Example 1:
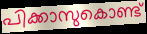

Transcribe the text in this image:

പിക്കാസുകൊണ്ട്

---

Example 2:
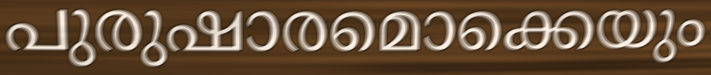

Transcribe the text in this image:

പുരുഷാരമൊക്കെയും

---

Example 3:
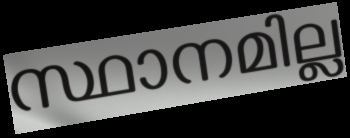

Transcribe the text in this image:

സ്ഥാനമില്ല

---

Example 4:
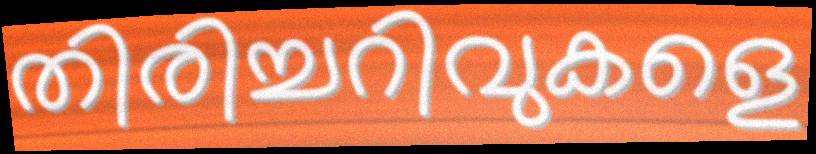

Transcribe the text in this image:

തിരിച്ചറിവുകളെ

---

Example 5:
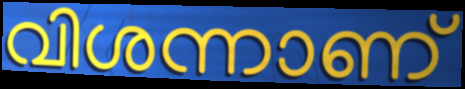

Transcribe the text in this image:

വിശന്നാണ്